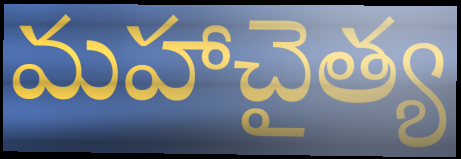
మహాచైత్య